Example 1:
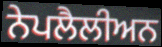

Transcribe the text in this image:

ਨੇਪਲੈਲੀਅਨ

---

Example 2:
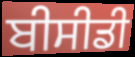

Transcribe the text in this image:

ਬੀਸੀਡੀ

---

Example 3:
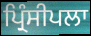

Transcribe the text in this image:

ਪ੍ਰਿੰਸੀਪਲਾ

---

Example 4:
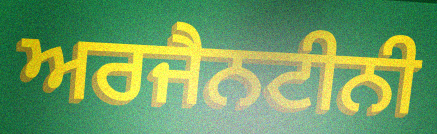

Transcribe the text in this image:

ਅਰਜੈਨਟੀਨੀ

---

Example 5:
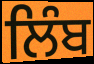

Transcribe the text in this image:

ਲਿੰਬ